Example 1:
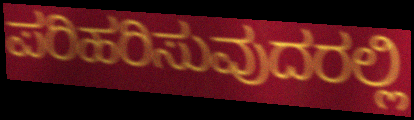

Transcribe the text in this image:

ಪರಿಹರಿಸುವುದರಲ್ಲಿ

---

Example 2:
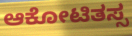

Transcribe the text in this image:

ಆಕೋಟಿತಸ್ಸ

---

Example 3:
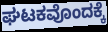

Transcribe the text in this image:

ಘಟಕವೊಂದಕ್ಕೆ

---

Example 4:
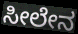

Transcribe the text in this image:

ಸೀಲೇನ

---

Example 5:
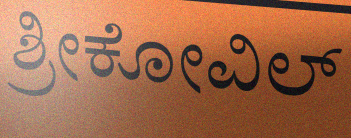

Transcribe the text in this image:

ಶ್ರೀಕೋವಿಲ್